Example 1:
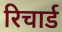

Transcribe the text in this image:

रिचार्ड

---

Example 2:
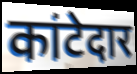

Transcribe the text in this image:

कांटेदार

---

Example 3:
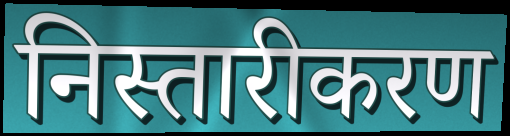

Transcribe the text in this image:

निस्तारीकरण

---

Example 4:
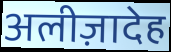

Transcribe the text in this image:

अलीज़ादेह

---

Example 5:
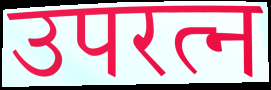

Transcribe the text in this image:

उपरत्न